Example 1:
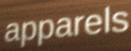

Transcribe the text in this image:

apparels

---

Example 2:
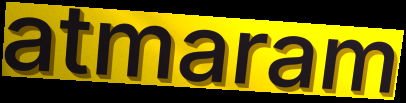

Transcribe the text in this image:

atmaram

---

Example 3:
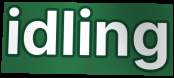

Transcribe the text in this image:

idling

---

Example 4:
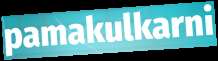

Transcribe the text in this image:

pamakulkarni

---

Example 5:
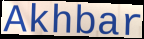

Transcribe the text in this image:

Akhbar